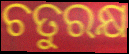
ଚତୁରକ୍ଷ